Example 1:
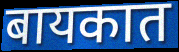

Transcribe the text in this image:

बायकात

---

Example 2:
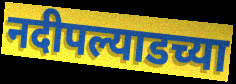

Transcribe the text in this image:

नदीपल्याडच्या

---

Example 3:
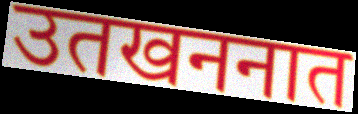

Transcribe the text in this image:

उतखननात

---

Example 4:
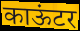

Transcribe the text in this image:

काऊंटर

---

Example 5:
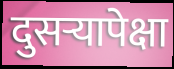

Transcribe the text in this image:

दुसऱ्यापेक्षा